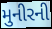
મુનીરની